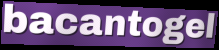
bacantogel